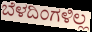
ಬೆಳದಿಂಗಳಿಲ್ಲ